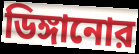
ডিঙ্গানোর